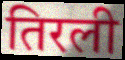
तिरली